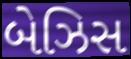
બેઝિસ